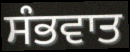
ਸੰਭਵਾਤ